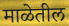
माळेतील